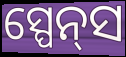
ସ୍ପେନ୍‌ସ